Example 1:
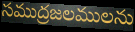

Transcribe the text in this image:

సముద్రజలములను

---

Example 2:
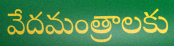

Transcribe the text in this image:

వేదమంత్రాలకు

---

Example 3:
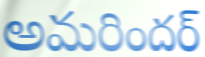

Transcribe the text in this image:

అమరిందర్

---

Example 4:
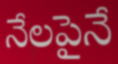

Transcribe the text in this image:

నేలపైనే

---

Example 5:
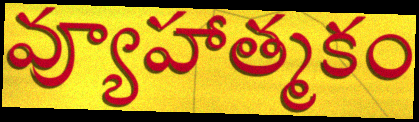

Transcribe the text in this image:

వ్యూహాత్మకం